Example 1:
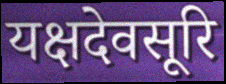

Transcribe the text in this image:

यक्षदेवसूरि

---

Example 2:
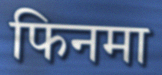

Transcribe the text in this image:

फिनमा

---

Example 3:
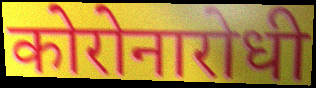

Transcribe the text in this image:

कोरोनारोधी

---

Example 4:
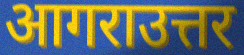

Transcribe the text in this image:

आगराउत्तर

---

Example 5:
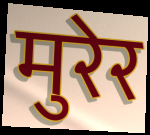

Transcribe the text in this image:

मुरेर